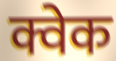
क्वेक